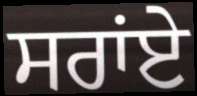
ਸਰਾਂਏ